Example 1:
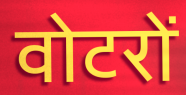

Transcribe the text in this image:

वोटरों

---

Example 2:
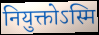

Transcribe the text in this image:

नियुक्तोऽस्मि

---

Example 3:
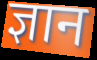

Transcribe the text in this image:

ज्ञान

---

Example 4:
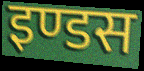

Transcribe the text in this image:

इण्डस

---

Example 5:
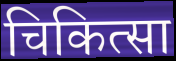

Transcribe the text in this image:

चिकित्सा